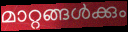
മാറ്റങ്ങൾക്കും